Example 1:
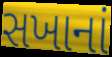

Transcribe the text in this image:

સખાનાં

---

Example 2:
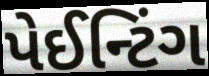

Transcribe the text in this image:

પેઈન્ટિંગ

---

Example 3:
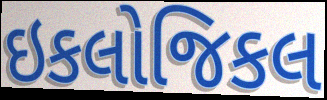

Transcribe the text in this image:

ઇકલોજિકલ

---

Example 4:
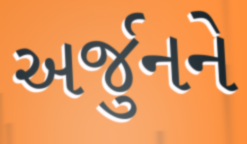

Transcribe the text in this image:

અર્જુનને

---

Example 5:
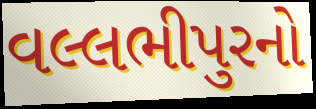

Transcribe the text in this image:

વલ્લભીપુરનો